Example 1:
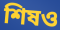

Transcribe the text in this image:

শিষও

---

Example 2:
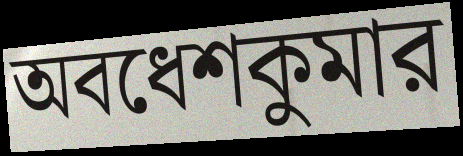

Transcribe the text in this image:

অবধেশকুমার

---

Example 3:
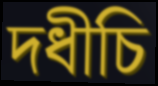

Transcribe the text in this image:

দধীচি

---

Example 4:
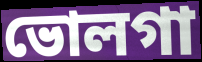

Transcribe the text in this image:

ভোলগা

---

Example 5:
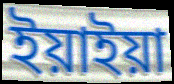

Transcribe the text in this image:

ইয়াইয়া